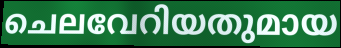
ചെലവേറിയതുമായ